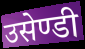
उसेण्डी